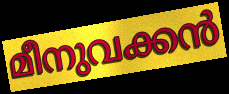
മീനുവക്കൻ